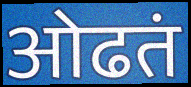
ओढतं